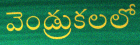
వెండ్రుకలలో